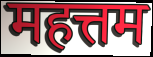
महत्तम